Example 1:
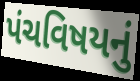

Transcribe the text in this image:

પંચવિષયનું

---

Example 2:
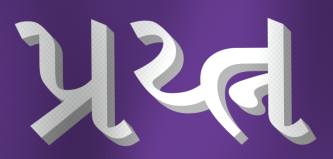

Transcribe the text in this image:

પ્રય્ત્ન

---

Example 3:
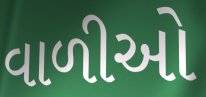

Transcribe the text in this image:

વાળીઓ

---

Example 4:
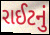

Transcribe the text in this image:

રાઈટનું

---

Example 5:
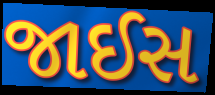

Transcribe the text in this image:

જાઈસ